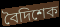
বৈদিশেক